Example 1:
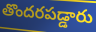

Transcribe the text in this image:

తొందరపడ్డారు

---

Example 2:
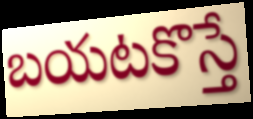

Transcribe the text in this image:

బయటకొస్తే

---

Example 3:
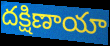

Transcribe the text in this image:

దక్షిణాయా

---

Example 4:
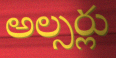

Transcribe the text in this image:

అల్సర్లు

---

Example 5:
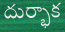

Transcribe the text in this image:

దుర్భాక